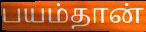
பயம்தான்